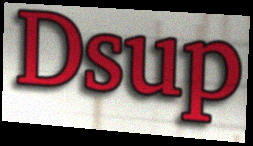
Dsup